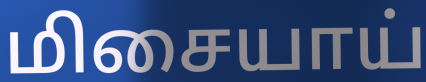
மிசையாய்